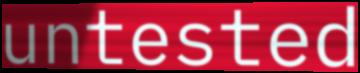
untested